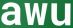
awu